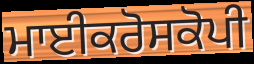
ਮਾਈਕਰੋਸਕੋਪੀ